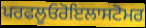
ਪਰਫਲੂਓਰੋਇਲਾਸਟੋਮਰ